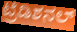
ಟ್ರೆಡಿಶನಲ್